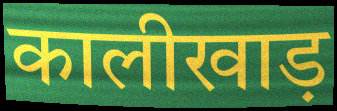
कालीखाड़